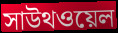
সাউথওয়েল